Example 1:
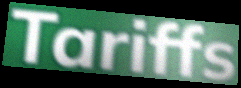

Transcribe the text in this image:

Tariffs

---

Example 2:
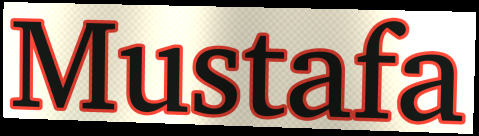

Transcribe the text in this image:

Mustafa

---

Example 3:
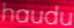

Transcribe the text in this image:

haudu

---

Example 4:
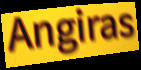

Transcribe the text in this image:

Angiras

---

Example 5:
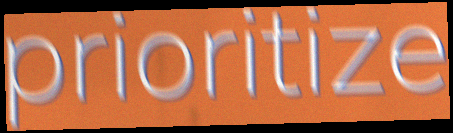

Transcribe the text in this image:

prioritize